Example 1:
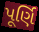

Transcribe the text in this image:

પૂર્ણિ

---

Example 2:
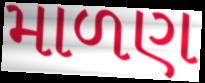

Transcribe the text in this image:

માળણ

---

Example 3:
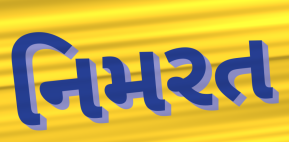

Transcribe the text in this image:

નિમરત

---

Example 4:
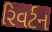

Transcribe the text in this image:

રિવર્ટન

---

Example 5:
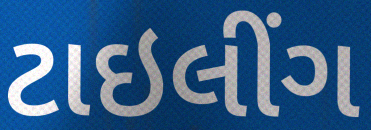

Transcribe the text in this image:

ટાઇલીંગ